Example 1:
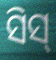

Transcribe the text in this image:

ସିସ୍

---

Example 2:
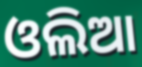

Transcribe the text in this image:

ଓଲିଆ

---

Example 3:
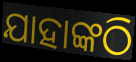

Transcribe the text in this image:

ଯାହାଙ୍କଠି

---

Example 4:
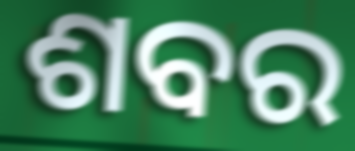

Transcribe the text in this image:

ଶବର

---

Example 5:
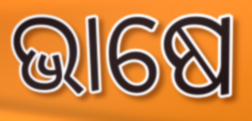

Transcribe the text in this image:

ଭାଷେ